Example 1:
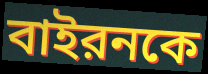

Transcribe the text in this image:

বাইরনকে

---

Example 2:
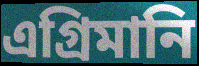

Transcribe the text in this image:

এগ্রিমানি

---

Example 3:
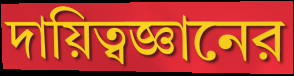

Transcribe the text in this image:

দায়িত্বজ্ঞানের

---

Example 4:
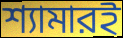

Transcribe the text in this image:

শ্যামারই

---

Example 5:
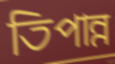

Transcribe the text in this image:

তিপান্ন